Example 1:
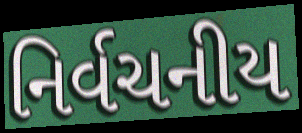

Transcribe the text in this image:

નિર્વચનીય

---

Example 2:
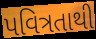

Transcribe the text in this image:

પવિત્રતાથી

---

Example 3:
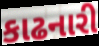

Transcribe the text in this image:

કાઢનારી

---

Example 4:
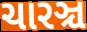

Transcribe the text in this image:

ચારઞ્ચ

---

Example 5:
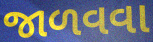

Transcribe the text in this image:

જાળવવા